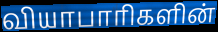
வியாபாரிகளின்